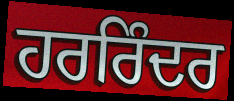
ਹਰਰਿੰਦਰ